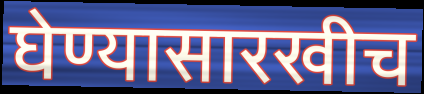
घेण्यासारखीच